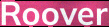
Roover